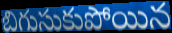
బిగుసుకుపోయిన